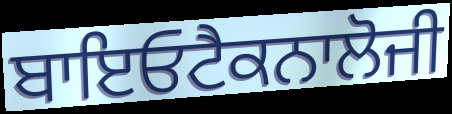
ਬਾਇਓਟੈਕਨਾਲੋਜੀ